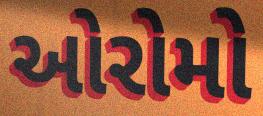
ઓરોમો